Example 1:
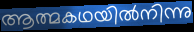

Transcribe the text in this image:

ആത്മകഥയിൽനിന്നു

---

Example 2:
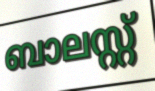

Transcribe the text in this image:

ബാലസ്റ്റ്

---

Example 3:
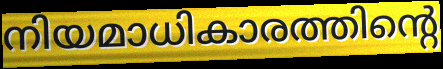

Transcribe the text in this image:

നിയമാധികാരത്തിന്റെ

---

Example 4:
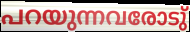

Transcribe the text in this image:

പറയുന്നവരോടു്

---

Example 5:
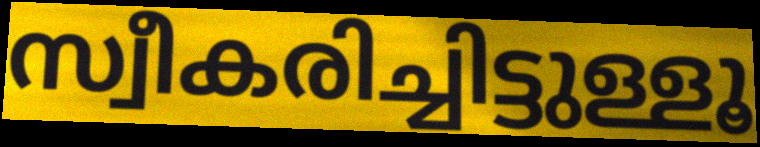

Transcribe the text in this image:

സ്വീകരിച്ചിട്ടുള്ളൂ